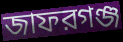
জাফরগঞ্জ